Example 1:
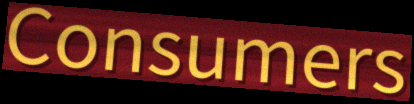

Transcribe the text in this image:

Consumers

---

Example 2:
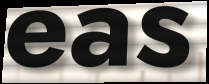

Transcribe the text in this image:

eas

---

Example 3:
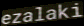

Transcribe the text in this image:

ezalaki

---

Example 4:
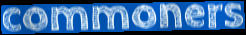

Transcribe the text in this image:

commoners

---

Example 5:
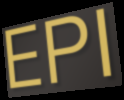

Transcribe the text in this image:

EPI